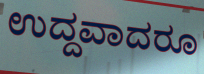
ಉದ್ದವಾದರೂ